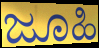
ಜೂಹಿ